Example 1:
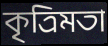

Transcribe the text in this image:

কৃত্রিমতা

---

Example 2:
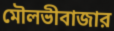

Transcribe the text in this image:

মৌলভীবাজার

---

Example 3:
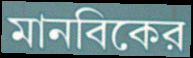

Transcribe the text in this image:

মানবিকের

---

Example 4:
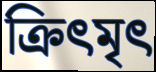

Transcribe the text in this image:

ক্রিৎমৃৎ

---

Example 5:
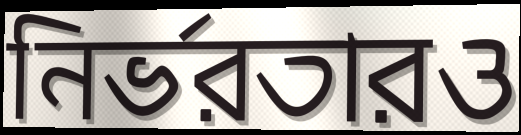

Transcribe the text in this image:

নির্ভরতারও